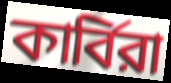
কার্বিরা